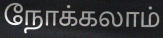
நோக்கலாம்